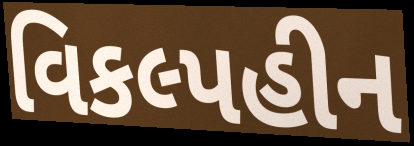
વિકલ્પહીન